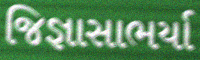
જિજ્ઞાસાભર્યા